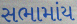
સભામાંય